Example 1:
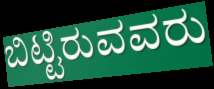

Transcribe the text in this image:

ಬಿಟ್ಟಿರುವವರು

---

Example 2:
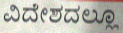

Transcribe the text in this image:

ವಿದೇಶದಲ್ಲೂ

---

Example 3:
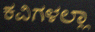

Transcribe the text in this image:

ಕವಿಗಳಲ್ಲಾ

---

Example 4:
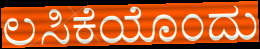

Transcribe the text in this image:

ಲಸಿಕೆಯೊಂದು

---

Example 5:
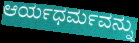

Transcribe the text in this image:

ಆರ್ಯಧರ್ಮವನ್ನು